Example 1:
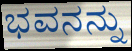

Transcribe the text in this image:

ಭವನನ್ನು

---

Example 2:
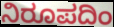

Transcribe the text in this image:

ನಿರೂಪದಿಂ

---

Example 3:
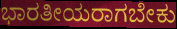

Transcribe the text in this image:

ಭಾರತೀಯರಾಗಬೇಕು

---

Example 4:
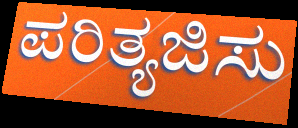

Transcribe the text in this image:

ಪರಿತ್ಯಜಿಸು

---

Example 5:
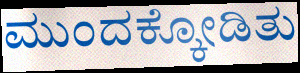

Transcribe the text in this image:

ಮುಂದಕ್ಕೋಡಿತು